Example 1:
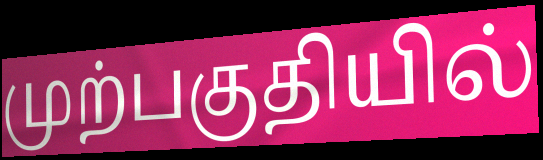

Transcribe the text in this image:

முற்பகுதியில்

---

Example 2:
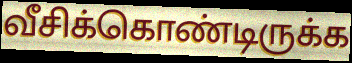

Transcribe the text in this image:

வீசிக்கொண்டிருக்க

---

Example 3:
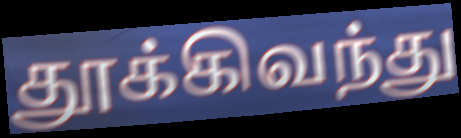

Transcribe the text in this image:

தூக்கிவந்து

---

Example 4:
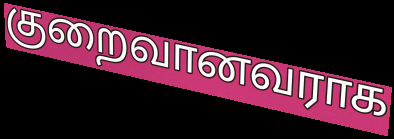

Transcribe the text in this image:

குறைவானவராக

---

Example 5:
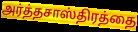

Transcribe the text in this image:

அர்த்தசாஸ்திரத்தை